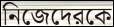
নিজেদেরকে